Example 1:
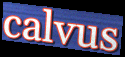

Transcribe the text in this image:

calvus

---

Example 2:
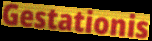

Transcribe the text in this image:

Gestationis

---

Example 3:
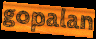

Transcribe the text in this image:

gopalan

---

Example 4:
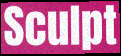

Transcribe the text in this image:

Sculpt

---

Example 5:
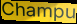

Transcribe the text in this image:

Champu